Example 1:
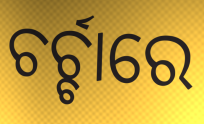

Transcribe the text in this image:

ଚର୍ଚ୍ଚାରେ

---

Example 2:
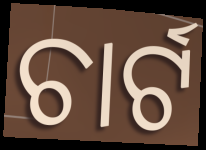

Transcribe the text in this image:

ଚାର୍ଟ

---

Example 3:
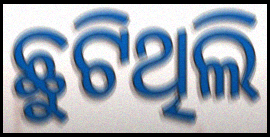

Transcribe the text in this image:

ଛୁଟିଥିଲି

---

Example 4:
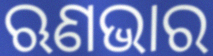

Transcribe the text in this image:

ଋଣଭାର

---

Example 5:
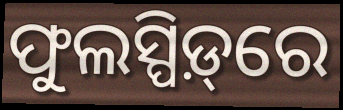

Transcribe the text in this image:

ଫୁଲସ୍ପିଡ଼୍‌ରେ